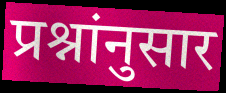
प्रश्नांनुसार